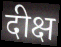
दीक्ष